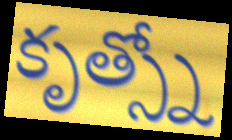
కృత్స్నో